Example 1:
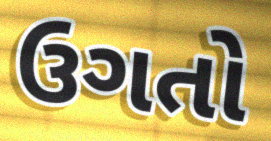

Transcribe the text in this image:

ઉગતો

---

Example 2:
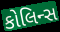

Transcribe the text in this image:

કોલિન્સ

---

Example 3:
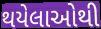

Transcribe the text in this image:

થયેલાઓથી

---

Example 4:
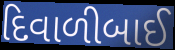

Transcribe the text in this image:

દિવાળીબાઈ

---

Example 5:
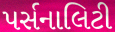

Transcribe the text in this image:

પર્સનાલિટી